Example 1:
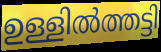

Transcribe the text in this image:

ഉള്ളിൽത്തട്ടി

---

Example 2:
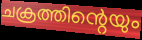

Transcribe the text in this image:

ചക്രത്തിന്റെയും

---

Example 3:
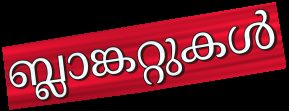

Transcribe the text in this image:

ബ്ലാങ്കറ്റുകൾ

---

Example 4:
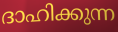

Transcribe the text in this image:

ദാഹിക്കുന്ന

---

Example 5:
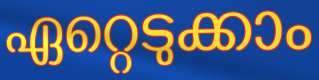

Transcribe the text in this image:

ഏറ്റെടുക്കാം